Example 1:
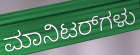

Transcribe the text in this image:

ಮಾನಿಟರ್‌ಗಳು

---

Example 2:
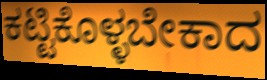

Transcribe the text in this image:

ಕಟ್ಟಿಕೊಳ್ಳಬೇಕಾದ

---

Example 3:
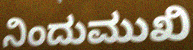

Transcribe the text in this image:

ನಿಂದುಮುಖಿ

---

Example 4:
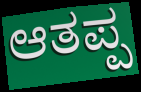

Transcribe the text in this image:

ಆತಪ್ಪ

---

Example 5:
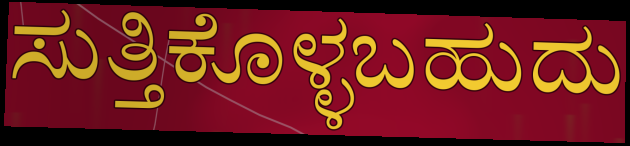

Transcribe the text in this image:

ಸುತ್ತಿಕೊಳ್ಳಬಹುದು